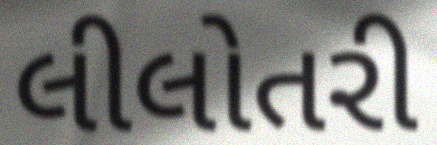
લીલોતરી